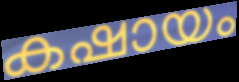
കഷായം